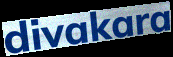
divakara